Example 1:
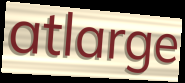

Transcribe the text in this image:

atlarge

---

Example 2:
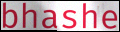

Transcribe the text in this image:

bhashe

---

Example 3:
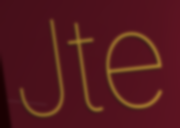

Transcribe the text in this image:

Jte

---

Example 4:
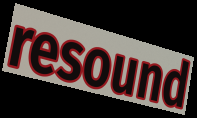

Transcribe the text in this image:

resound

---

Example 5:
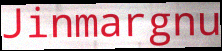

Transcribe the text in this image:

Jinmargnu